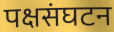
पक्षसंघटन